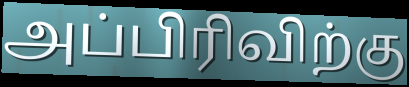
அப்பிரிவிற்கு